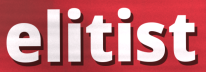
elitist